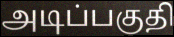
அடிப்பகுதி